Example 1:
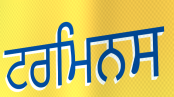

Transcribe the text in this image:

ਟਰਮਿਨਸ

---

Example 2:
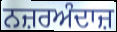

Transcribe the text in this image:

ਨਜ਼ਰਅੰਦਾਜ਼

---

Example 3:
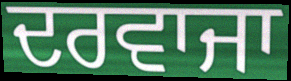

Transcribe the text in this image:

ਦਰਵਾਜਾ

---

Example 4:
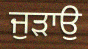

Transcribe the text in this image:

ਜੁੜਾਉ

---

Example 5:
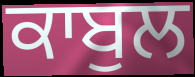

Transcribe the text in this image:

ਕਾਬੁਲ